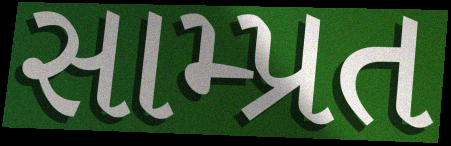
સામ્પ્રત